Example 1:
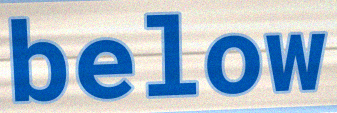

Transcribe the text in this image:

below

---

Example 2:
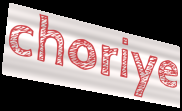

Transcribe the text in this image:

choriye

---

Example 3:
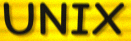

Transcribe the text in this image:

UNIX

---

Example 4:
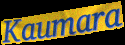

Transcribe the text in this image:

Kaumara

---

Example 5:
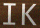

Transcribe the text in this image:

IK